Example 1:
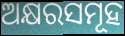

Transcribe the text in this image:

ଅକ୍ଷରସମୂହ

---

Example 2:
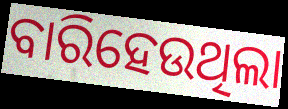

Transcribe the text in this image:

ବାରିହେଉଥିଲା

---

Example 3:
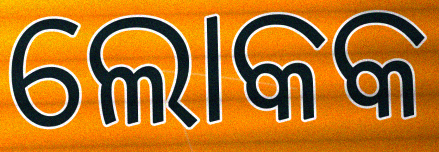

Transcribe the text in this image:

ଲୋକକ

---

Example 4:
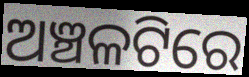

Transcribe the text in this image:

ଅଞ୍ଚଳଟିରେ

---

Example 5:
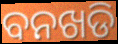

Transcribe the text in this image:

ବନଖଡି